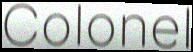
Colonel